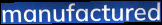
manufactured